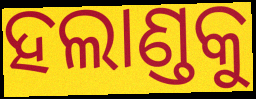
ହଲାଣ୍ଡକୁ